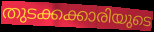
തുടക്കക്കാരിയുടെ